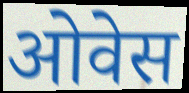
ओवेस